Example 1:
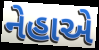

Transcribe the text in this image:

નેહાએ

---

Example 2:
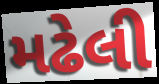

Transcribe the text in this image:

મઢેલી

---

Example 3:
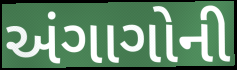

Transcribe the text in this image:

અંગાગોની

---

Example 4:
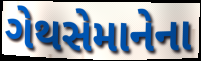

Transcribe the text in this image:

ગેથસેમાનેના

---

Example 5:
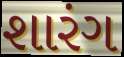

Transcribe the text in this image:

શારંગ